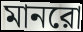
মানরো